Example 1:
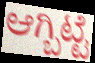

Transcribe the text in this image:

ಆಗ್ಬಿಟ್ಟೆ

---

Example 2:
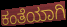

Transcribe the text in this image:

ಕಂತೆಯಾಗಿ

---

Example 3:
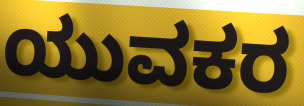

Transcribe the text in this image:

ಯುವಕರ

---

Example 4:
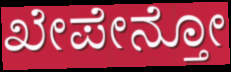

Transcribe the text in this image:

ಖೇಪೇನ್ತೋ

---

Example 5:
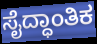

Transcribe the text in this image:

ಸೈದ್ಧಾಂತಿಕ